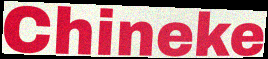
Chineke